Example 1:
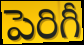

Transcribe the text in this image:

పెరిగీ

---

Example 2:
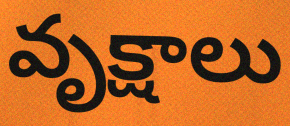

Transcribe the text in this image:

వృక్షాలు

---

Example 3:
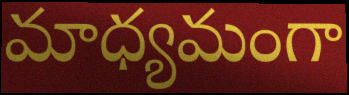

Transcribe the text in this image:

మాధ్యమంగా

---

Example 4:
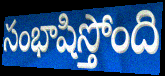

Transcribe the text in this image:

సంభాషిస్తోంది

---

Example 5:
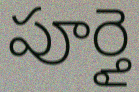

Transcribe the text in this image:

పూర్తై